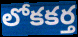
లోకకర్త